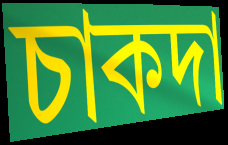
চাকদা